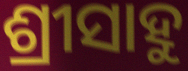
ଶ୍ରୀସାହୁ